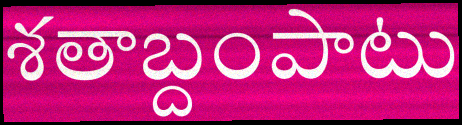
శతాబ్దంపాటు